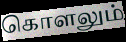
கொளலும்